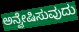
ಅನ್ವೇಷಿಸುವುದು